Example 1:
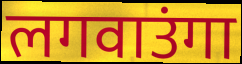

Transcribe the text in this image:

लगवाउंगा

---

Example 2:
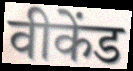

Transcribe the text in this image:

वीकेंड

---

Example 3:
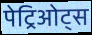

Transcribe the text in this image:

पेट्रिओट्स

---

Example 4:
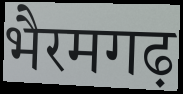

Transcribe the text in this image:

भैरमगढ़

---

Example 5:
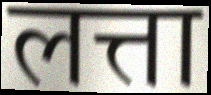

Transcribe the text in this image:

लत्ता